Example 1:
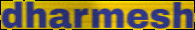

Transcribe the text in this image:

dharmesh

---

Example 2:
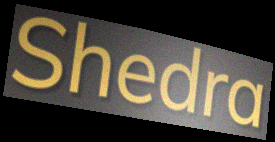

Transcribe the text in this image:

Shedra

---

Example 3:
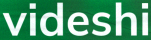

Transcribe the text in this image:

videshi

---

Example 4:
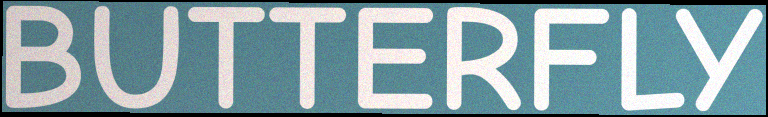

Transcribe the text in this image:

BUTTERFLY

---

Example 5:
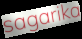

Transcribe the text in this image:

sagarika